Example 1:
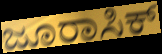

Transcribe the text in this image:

ಜೂರಾಸಿಕ್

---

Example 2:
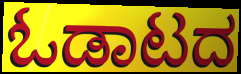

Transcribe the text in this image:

ಓಡಾಟದ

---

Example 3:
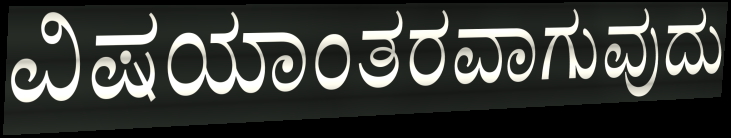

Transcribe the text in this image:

ವಿಷಯಾಂತರವಾಗುವುದು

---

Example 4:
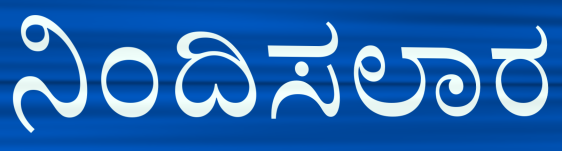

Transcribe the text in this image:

ನಿಂದಿಸಲಾರ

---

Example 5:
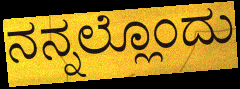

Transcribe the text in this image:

ನನ್ನಲ್ಲೊಂದು